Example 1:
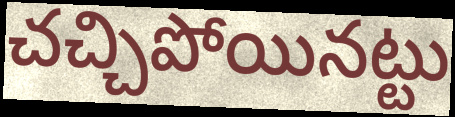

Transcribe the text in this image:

చచ్చిపోయినట్టు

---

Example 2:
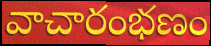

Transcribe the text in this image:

వాచారంభణం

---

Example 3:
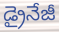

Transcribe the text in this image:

డ్రైనేజీ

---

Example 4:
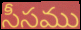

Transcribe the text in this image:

సీసము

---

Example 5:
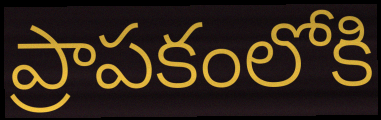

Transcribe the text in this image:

ప్రాపకంలోకి